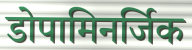
डोपामिनर्जिक